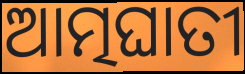
ଆତ୍ମଘାତୀ